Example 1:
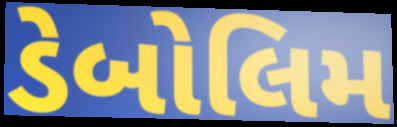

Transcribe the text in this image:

ડેબોલિમ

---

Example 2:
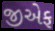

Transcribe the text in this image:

જીએફ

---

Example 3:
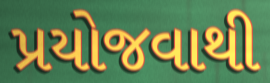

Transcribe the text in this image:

પ્રયોજવાથી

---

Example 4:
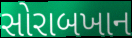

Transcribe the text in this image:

સોરાબખાન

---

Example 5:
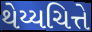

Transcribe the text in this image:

થેય્યચિત્તે